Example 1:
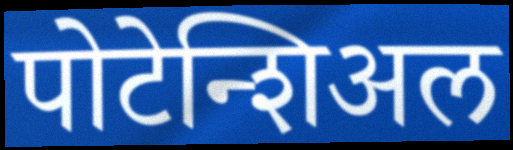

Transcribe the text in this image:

पोटेन्शिअल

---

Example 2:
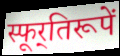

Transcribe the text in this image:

स्फूर्तिरूपें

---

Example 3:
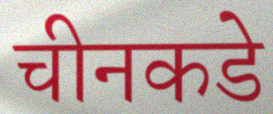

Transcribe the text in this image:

चीनकडे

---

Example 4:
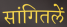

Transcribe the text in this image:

सांगितलें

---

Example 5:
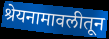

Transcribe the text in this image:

श्रेयनामावलीतून